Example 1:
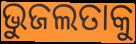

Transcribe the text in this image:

ଭୁଜଲତାକୁ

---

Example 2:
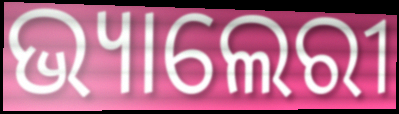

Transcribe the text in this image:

ଭ୍ୟାଲେରୀ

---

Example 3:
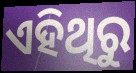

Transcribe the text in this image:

ଏହିଥିରୁ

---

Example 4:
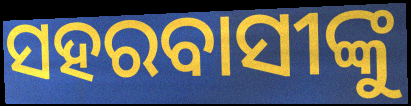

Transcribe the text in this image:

ସହରବାସୀଙ୍କୁ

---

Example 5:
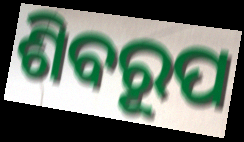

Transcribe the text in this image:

ଶିବରୂପ